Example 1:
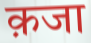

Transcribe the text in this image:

क़जा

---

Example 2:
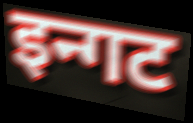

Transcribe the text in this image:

इन्गट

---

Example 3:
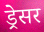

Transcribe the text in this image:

ड्रेसर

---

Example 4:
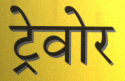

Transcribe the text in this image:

ट्रेवोर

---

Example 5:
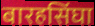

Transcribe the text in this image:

बारहसिंघा